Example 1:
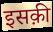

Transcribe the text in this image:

इसक़ी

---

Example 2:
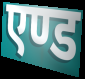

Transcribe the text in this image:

एण्ड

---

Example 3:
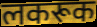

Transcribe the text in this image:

लकरूक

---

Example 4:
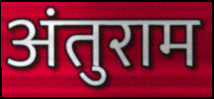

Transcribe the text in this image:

अंतुराम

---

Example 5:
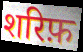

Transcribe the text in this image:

शरिफ़